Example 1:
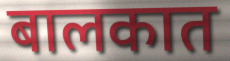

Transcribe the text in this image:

बालकात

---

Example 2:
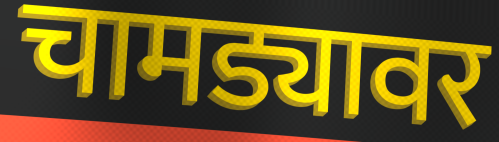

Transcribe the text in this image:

चामड्यावर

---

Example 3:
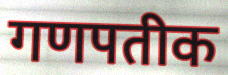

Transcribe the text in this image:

गणपतीक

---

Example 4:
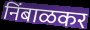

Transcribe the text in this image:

निंबाळकर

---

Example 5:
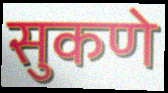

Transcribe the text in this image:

सुकणे